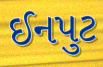
ઈનપુટ